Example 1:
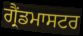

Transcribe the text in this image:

ਗ੍ਰੈਂਡਮਾਸਟਰ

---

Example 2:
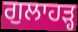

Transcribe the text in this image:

ਗੁਲਾਹੜ੍ਹ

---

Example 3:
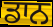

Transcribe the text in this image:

ਡਾਨ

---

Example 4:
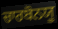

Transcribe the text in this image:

ਚਾਰਬੋਨਯੂ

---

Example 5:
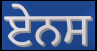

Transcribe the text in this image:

ਏਨਸ